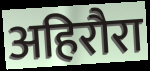
अहिरौरा